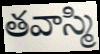
తవాస్మి